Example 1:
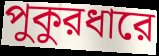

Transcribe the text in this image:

পুকুরধারে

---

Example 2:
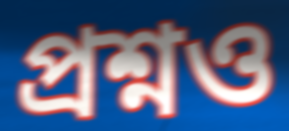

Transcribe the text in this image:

প্রশ্নও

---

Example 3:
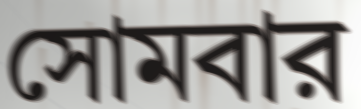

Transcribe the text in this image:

সোমবার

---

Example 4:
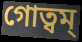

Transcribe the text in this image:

গোত্বম্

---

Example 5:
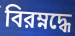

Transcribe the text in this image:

বিরম্নদ্ধে